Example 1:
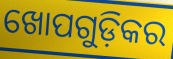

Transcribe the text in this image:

ଖୋପଗୁଡ଼ିକର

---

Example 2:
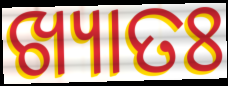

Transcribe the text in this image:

ଖ୍ୟାତଃ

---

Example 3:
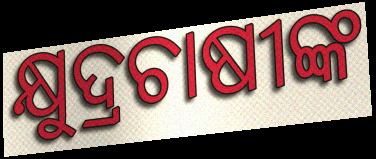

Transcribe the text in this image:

କ୍ଷୁଦ୍ରଚାଷୀଙ୍କ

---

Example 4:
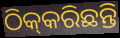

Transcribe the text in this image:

ଠିକ୍‌କରିଛନ୍ତି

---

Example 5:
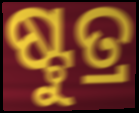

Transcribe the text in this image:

ଷ୍ଟୁତ୍ର